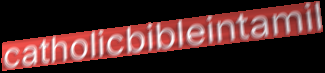
catholicbibleintamil